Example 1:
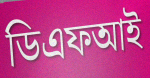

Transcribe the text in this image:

ডিএফআই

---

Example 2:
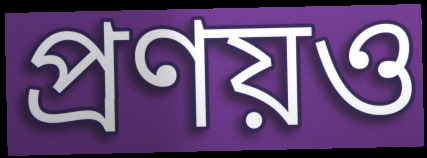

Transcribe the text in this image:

প্রণয়ও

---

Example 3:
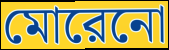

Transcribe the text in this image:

মোরেনো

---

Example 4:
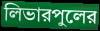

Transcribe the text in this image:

লিভারপুলের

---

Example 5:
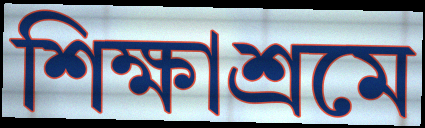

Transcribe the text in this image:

শিক্ষাশ্রমে